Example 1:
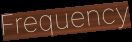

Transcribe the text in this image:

Frequency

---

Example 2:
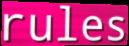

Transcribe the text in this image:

rules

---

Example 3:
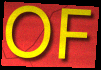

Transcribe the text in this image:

OF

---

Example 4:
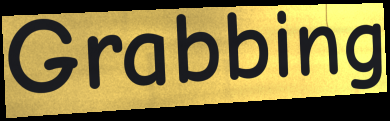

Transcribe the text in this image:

Grabbing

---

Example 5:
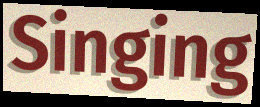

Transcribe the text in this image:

Singing